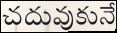
చదువుకునే